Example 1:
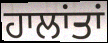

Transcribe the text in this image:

ਹਾਲਾਂਤਾਂ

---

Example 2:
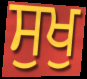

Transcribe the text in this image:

ਸੁਖੁ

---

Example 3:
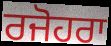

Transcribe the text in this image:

ਰਜੋਹਰਾ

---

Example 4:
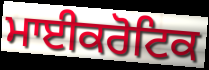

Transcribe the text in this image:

ਮਾਈਕਰੋਟਿਕ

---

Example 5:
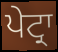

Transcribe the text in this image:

ਪੇਟ੍ਰਾ